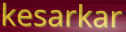
kesarkar